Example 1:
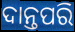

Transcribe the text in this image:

ଦାନ୍ତପରି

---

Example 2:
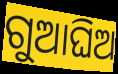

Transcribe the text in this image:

ଗୁଆଘିଅ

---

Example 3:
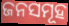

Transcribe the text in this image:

ଜନସମୂହ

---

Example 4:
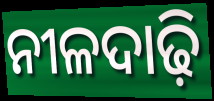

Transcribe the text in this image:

ନୀଳଦାଢ଼ି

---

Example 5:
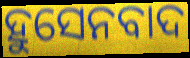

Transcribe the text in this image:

ହୁସେନବାଦ